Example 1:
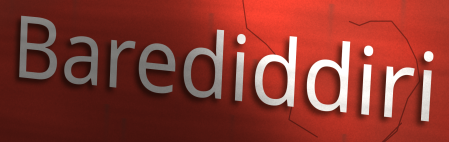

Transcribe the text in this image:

Barediddiri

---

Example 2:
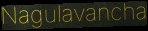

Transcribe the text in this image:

Nagulavancha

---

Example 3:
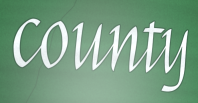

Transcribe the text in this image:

county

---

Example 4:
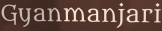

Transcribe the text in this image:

Gyanmanjari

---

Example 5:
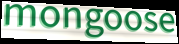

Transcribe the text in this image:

mongoose